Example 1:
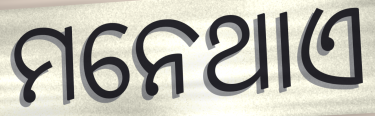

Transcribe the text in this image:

ମନେଥାଏ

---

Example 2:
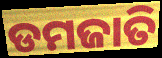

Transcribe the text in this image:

ଡମଜାତି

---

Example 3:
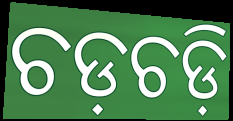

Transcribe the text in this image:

ଚଡ଼ଚଡ଼ି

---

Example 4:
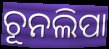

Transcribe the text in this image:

ଚୂନଲିପା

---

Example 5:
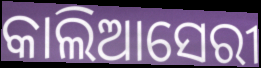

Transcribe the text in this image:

କାଲିଆସେରୀ